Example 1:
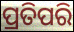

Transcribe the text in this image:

ପ୍ରତିପରି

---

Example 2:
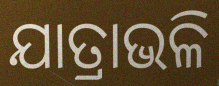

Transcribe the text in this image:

ଯାତ୍ରାଭଳି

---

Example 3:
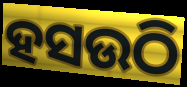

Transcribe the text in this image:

ହସଉଠି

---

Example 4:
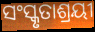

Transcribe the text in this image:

ସଂସ୍କୃତାଶ୍ରୟୀ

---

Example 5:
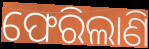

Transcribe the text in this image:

ଫେରିଲାଣି